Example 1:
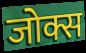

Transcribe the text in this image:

जोक्स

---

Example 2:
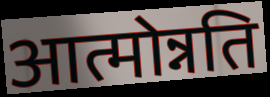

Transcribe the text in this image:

आत्मोन्नति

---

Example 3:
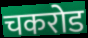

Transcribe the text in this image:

चकरोड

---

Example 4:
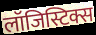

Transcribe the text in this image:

लॉजिस्टिक्स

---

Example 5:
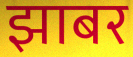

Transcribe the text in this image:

झाबर